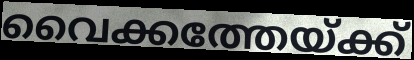
വൈക്കത്തേയ്ക്ക്